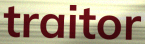
traitor